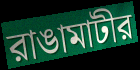
রাঙামাটীর